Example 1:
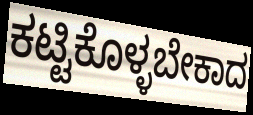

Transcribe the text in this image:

ಕಟ್ಟಿಕೊಳ್ಳಬೇಕಾದ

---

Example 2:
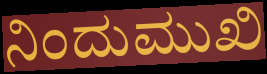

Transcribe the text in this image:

ನಿಂದುಮುಖಿ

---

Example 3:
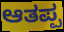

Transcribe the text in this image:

ಆತಪ್ಪ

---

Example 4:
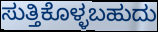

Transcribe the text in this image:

ಸುತ್ತಿಕೊಳ್ಳಬಹುದು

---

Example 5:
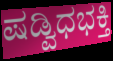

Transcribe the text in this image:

ಷಡ್ವಿಧಭಕ್ತಿ